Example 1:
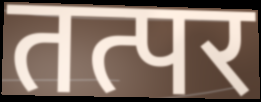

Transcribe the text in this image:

तत्पर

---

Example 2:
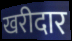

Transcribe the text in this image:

खरीदार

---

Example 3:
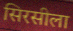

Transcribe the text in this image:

सिरसीला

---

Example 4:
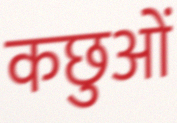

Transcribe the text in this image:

कछुओं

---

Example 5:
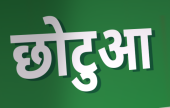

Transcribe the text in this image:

छोटुआ